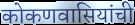
कोकणवासियांची